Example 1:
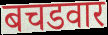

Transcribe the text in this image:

बचडवार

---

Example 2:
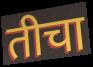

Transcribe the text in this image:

तीचा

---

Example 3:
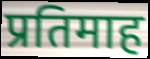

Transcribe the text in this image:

प्रतिमाह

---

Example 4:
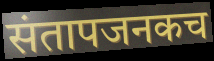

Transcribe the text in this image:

संतापजनकच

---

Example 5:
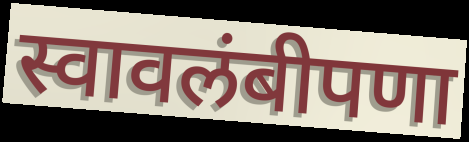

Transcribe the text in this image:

स्वावलंबीपणा